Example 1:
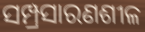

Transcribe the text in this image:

ସମ୍ପ୍ରସାରଣଶୀଳ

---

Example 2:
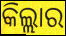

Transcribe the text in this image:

କିଲ୍ଲାର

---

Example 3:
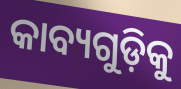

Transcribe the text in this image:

କାବ୍ୟଗୁଡ଼ିକୁ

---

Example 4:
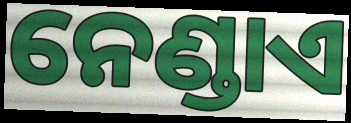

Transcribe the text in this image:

ନେଣ୍ଡାଏ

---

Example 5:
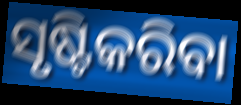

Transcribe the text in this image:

ସୃଷ୍ଟିକରିବା